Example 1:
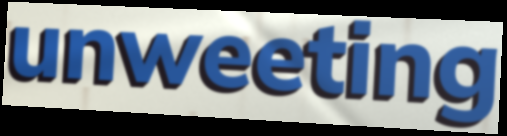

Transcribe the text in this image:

unweeting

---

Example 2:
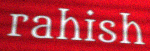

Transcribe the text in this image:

rahish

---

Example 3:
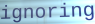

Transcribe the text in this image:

ignoring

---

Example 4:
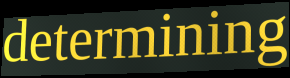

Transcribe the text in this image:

determining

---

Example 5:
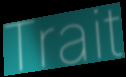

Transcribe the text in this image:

Trait